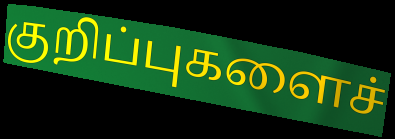
குறிப்புகளைச்